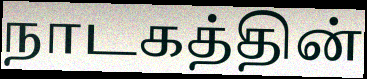
நாடகத்தின்